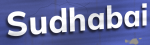
Sudhabai